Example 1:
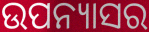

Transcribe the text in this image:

ଉପନ୍ୟାସର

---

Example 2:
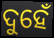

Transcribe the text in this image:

ଦୁହେଁ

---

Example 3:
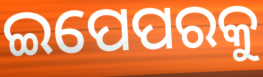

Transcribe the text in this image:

ଇପେପରକୁ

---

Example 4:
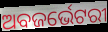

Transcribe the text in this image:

ଅବଜର୍ଭେଟରୀ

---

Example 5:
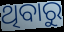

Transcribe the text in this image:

ଥିବାରୁ